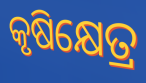
କୃଷିକ୍ଷେତ୍ର